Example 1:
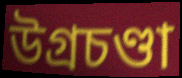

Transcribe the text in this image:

উগ্রচণ্ডা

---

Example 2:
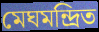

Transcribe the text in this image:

মেঘমন্দ্রিত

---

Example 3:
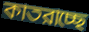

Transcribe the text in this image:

কাতরাচ্ছে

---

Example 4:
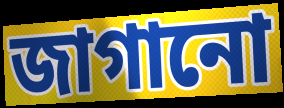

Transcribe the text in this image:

জাগানো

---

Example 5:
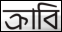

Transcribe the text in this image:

ক্রাবি